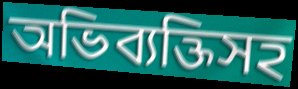
অভিব্যক্তিসহ